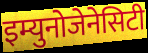
इम्युनोजेनेसिटी